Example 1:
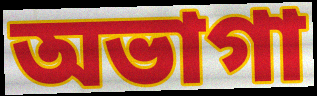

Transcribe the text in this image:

অভাগা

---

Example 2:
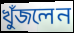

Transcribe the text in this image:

খুঁজলেন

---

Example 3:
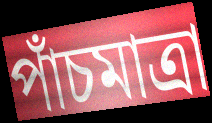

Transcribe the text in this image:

পাঁচমাত্রা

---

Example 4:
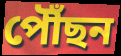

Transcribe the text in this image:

পৌঁছন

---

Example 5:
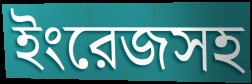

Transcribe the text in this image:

ইংরেজসহ